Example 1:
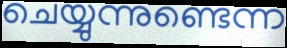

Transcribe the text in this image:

ചെയ്യുന്നുണ്ടെന്ന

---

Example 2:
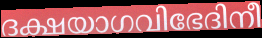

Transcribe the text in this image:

ദക്ഷയാഗവിഭേദിനീ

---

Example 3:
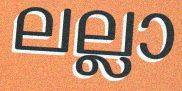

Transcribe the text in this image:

ലല്ലാ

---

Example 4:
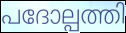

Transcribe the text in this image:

പദോല്പത്തി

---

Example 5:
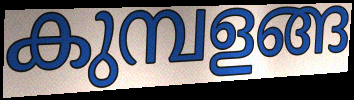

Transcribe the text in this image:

കുമ്പളങ്ങ